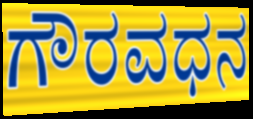
ಗೌರವಧನ